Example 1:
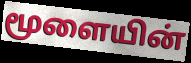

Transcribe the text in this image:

மூளையின்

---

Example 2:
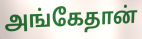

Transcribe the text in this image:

அங்கேதான்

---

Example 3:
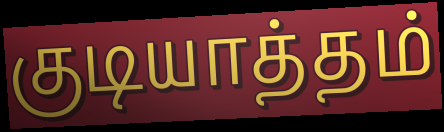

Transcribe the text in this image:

குடியாத்தம்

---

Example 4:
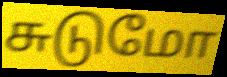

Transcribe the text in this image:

சுடுமோ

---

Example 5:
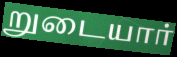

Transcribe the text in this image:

றுடையார்